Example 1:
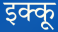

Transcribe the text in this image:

इक्कू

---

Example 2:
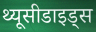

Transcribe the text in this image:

थ्यूसीडाइड्स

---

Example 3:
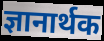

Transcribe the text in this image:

ज्ञानार्थक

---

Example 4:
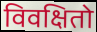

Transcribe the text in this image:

विवक्षितो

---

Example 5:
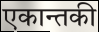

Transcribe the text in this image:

एकान्तकी